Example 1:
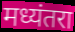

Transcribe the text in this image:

मध्यंतरा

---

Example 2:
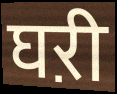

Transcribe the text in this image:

घऱी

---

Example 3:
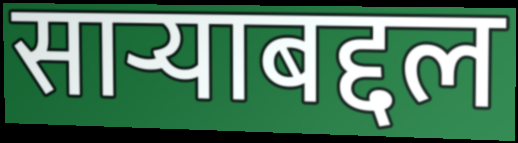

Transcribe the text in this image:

साऱ्याबद्दल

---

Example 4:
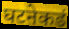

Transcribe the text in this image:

घटनेकडं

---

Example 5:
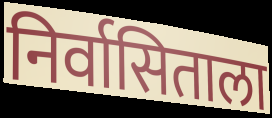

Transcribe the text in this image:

निर्वासिताला